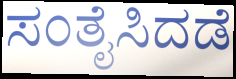
ಸಂತೈಸಿದಡೆ